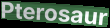
Pterosaur